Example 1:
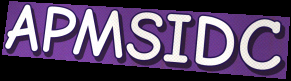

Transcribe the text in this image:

APMSIDC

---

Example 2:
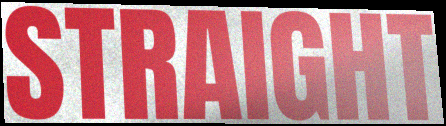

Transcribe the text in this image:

STRAIGHT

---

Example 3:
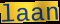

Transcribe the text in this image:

laan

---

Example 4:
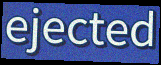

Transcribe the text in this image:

ejected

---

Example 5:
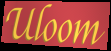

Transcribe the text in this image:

Uloom